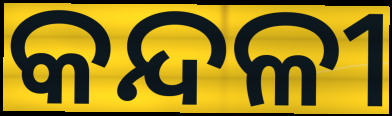
କନ୍ଦଳୀ